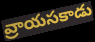
వ్రాయసకాడు